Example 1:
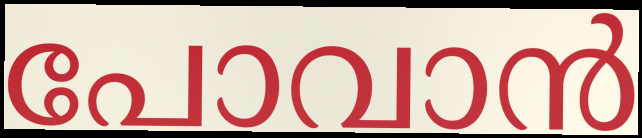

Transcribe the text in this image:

പോവാൻ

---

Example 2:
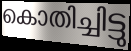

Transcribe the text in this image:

കൊതിച്ചിട്ടു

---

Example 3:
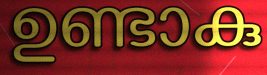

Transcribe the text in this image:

ഉണ്ടാകു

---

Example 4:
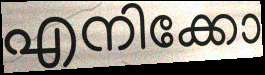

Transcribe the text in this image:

എനിക്കോ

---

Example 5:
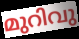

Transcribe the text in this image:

മുറിവു